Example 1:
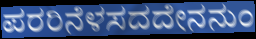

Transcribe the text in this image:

ಪರರಿನೆಳಸದದೇನನುಂ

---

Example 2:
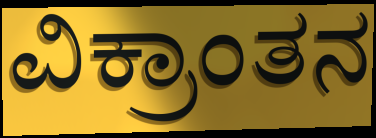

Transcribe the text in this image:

ವಿಕ್ರಾಂತನ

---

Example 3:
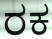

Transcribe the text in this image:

ರಕ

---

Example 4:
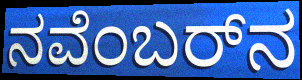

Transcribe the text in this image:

ನವೆಂಬರ್‌ನ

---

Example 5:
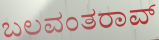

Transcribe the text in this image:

ಬಲವಂತರಾವ್